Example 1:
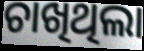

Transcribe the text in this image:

ଚାଖିଥିଲା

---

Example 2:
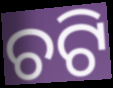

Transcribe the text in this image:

ଚଟି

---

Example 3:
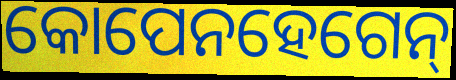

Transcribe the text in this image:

କୋପେନହେଗେନ୍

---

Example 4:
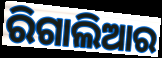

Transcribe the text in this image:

ରିଗାଲିଆର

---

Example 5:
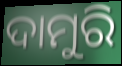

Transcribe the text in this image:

ଦାମୁରି